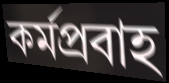
কর্মপ্রবাহ